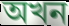
অখন